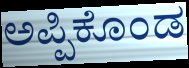
ಅಪ್ಪಿಕೊಂಡ